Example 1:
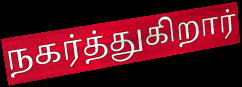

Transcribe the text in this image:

நகர்த்துகிறார்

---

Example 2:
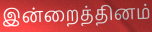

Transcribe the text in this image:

இன்றைத்தினம்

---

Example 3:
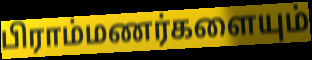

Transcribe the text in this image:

பிராம்மணர்களையும்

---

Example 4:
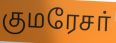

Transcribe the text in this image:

குமரேசர்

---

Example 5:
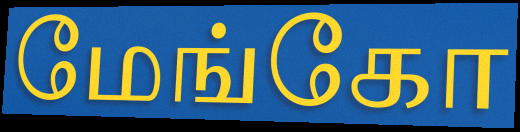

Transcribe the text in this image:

மேங்கோ